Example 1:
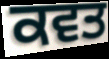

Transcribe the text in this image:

ਕਵਤ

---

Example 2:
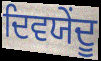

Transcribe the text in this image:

ਦਿਵਯੇਂਦੂ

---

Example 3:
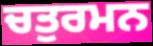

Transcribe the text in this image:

ਚਤੁਰਮਨ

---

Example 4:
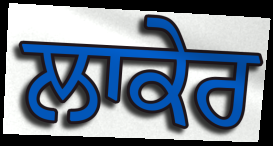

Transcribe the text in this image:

ਲਾਕੇਰ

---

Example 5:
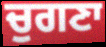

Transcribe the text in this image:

ਚੁਗਣਾ